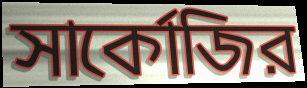
সার্কোজির